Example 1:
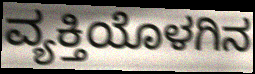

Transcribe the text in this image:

ವ್ಯಕ್ತಿಯೊಳಗಿನ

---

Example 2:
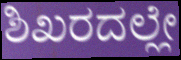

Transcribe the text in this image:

ಶಿಖರದಲ್ಲೇ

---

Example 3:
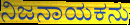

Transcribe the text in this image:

ನಿಜನಾಯಕನು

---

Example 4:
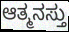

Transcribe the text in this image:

ಆತ್ಮನಸ್ತು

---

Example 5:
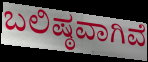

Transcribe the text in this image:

ಬಲಿಷ್ಠವಾಗಿವೆ